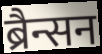
ब्रैन्सन